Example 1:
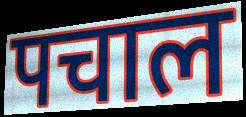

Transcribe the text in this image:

पचाल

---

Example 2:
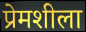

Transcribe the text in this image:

प्रेमशीला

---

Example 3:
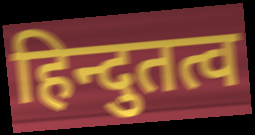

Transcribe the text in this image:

हिन्दुतत्व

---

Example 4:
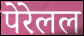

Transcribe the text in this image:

पेरेलल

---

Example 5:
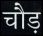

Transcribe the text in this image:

चौड़